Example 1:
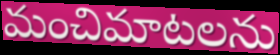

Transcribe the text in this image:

మంచిమాటలను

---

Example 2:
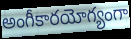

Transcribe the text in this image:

అంగీకారయోగ్యంగా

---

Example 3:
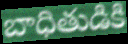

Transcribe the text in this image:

బాధితుడికి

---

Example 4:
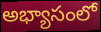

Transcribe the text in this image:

అభ్యాసంలో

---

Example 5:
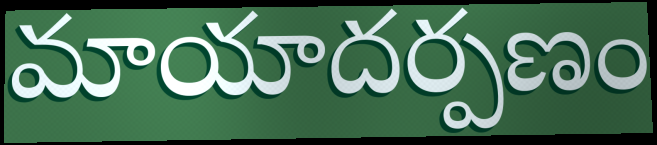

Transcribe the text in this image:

మాయాదర్పణం